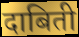
दाबिती